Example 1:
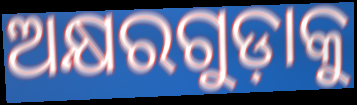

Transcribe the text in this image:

ଅକ୍ଷରଗୁଡ଼ାକୁ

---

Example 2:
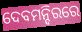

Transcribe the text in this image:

ଦେବମନ୍ଦିରରେ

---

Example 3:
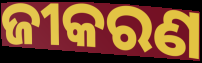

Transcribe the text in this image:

ଜୀକରଣ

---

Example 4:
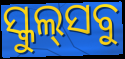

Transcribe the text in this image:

ସ୍କୁଲ୍‍ସବୁ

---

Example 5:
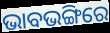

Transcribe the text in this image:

ଭାବଭଙ୍ଗିରେ